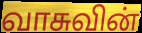
வாசுவின்